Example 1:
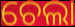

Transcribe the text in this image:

ଚେଲା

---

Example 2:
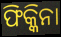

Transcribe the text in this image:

ଫିକ୍କିନା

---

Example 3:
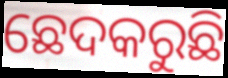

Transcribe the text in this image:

ଛେଦକରୁଛି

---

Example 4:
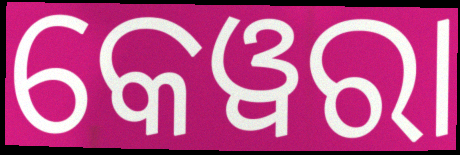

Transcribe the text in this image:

କେୱରା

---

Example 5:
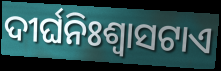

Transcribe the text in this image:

ଦୀର୍ଘନିଃଶ୍ୱାସଟାଏ